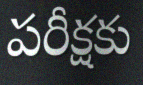
పరీక్షకు